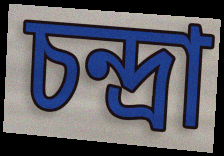
চন্দ্রা